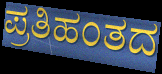
ಪ್ರತಿಹಂತದ